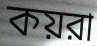
কয়রা